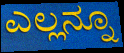
ಎಲ್ಲನ್ನೂ